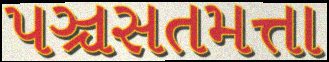
પઞ્ચસતમત્તા